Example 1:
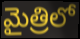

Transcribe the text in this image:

మైత్రిలో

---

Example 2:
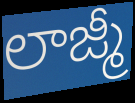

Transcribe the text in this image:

లాజ్మీ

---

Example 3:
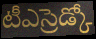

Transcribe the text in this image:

టీఎస్రెడ్కో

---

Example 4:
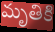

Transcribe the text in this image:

మృతికి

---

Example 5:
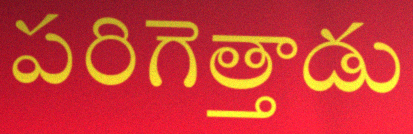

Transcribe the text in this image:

పరిగెత్తాడు